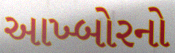
આખ્બોરનો